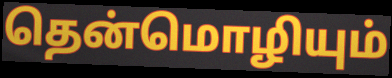
தென்மொழியும்